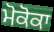
ਮੋਕੋਕਾ